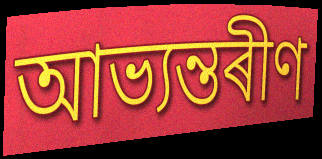
আভ্যন্তৰীণ